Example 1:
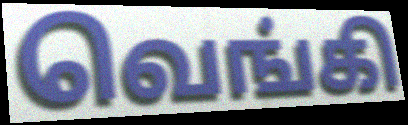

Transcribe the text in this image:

வெங்கி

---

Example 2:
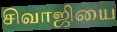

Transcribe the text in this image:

சிவாஜியை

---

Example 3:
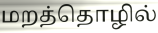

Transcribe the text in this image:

மறத்தொழில்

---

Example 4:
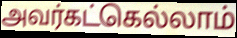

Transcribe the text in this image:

அவர்கட்கெல்லாம்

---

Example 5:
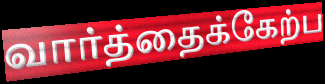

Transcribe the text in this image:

வார்த்தைக்கேற்ப